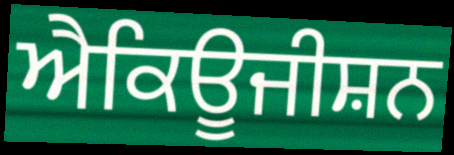
ਐਕਿਊਜੀਸ਼ਨ